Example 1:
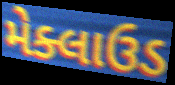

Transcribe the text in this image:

મેક્લાઉડ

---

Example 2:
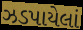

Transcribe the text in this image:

ઝડપાયેલાં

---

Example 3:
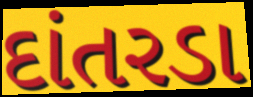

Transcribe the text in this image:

દાંતરડા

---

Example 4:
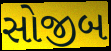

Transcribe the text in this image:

સોજીબ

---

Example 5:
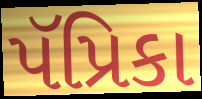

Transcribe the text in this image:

પૅપ્રિકા